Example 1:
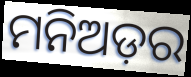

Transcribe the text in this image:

ମନିଅଡ଼ର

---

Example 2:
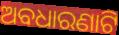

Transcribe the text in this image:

ଅବଧାରଣାଟି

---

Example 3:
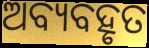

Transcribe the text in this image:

ଅବ୍ୟବହୃତ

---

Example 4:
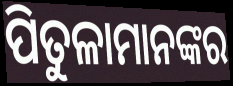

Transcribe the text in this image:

ପିତୁଳାମାନଙ୍କର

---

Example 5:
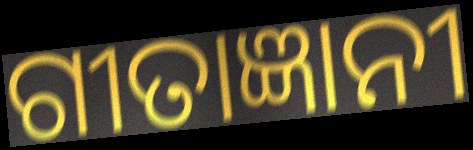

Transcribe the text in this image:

ଗୀତାଜ୍ଞାନୀ